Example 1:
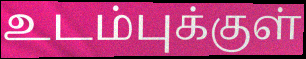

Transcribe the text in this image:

உடம்புக்குள்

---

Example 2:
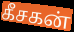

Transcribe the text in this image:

கீசகன்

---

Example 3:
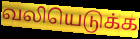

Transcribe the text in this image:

வலியெடுக்க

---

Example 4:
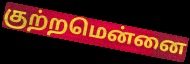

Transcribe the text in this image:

குற்றமென்னை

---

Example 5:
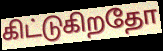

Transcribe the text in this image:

கிட்டுகிறதோ